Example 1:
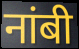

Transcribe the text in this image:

नांबी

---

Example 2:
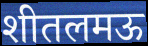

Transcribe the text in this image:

शीतलमऊ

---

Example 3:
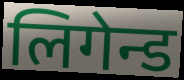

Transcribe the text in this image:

लिगेन्ड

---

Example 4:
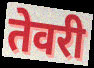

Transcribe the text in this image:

तेवरी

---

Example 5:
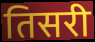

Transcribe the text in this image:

तिसरी